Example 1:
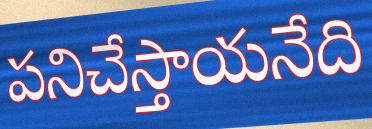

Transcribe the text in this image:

పనిచేస్తాయనేది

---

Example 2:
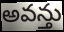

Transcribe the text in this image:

అవన్తు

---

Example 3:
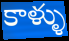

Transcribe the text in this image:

కాళ్ళు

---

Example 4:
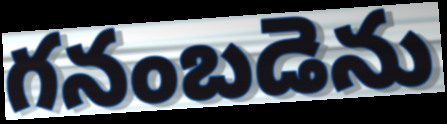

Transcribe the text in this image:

గనంబడెను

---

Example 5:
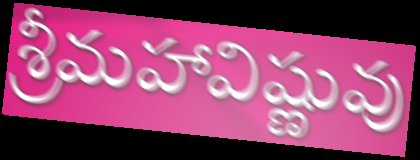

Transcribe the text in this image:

శ్రీమహావిష్ణువు